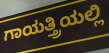
ಗಾಯತ್ತ್ರಿಯಲ್ಲಿ